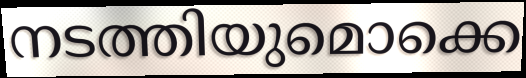
നടത്തിയുമൊക്കെ